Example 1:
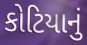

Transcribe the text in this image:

કોટિયાનું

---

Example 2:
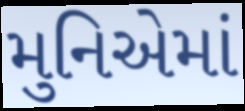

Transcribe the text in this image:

મુનિએમાં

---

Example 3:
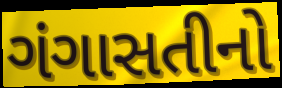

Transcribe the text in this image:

ગંગાસતીનો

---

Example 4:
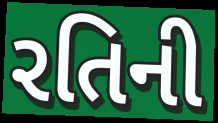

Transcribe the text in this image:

રતિની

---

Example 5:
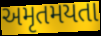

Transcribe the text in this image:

અમૃતમયતા